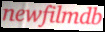
newfilmdb